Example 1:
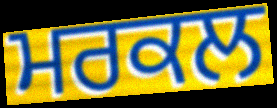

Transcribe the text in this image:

ਮਰਕਲ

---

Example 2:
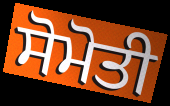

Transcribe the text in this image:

ਸੋਮੋਤੀ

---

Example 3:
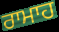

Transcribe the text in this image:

ਰਾਮਾਹ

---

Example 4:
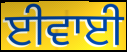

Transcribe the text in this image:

ਈਵਾਈ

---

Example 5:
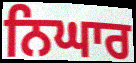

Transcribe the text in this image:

ਨਿਘਾਰ